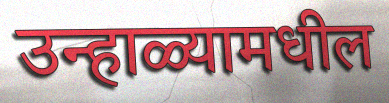
उन्हाळ्यामधील